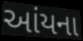
આંયના